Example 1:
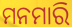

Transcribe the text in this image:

ମନମାରି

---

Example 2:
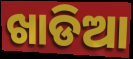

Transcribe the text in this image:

ଖାଡିଆ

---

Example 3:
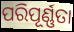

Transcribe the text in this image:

ପରିପୂର୍ଣ୍ଣତା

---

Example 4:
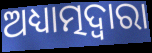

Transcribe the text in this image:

ଅଧ୍ୟାତ୍ମଦ୍ୱାରା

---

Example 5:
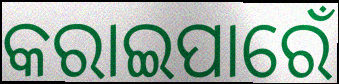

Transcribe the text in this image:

କରାଇପାରେଁ